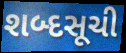
શબ્દસૂચી